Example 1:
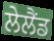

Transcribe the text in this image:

ਲੇਲੈਂਡ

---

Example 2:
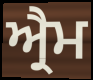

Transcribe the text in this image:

ਐ੍ਰਮ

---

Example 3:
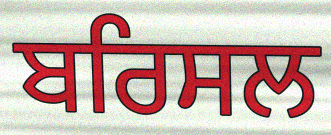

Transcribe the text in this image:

ਬਰਿਸਲ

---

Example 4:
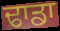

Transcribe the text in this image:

ਢਾਡਾ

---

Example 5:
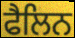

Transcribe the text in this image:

ਫੈਲਿਨ